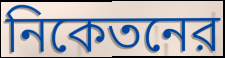
নিকেতনের